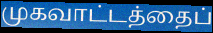
முகவாட்டத்தைப்